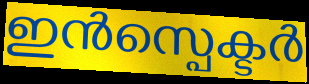
ഇൻസ്പെക്ടർ